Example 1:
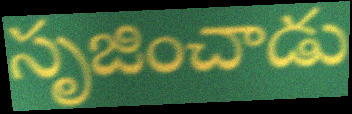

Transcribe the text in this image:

సృజించాడు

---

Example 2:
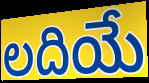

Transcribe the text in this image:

లదియే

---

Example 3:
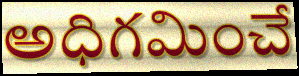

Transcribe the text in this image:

అధిగమించే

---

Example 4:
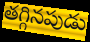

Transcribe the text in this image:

తగ్గినపుడు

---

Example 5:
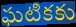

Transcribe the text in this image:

ఘటికకు